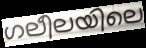
ഗലീലയിലെ